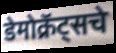
डेमोक्रॅट्सचे